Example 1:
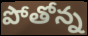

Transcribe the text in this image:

పోతోన్న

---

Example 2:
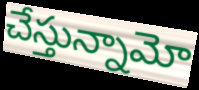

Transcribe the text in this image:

చేస్తున్నామో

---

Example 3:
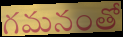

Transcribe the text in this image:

గమనంతో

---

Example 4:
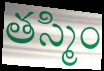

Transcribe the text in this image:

తస్మిం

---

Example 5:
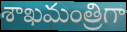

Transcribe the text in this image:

శాఖమంత్రిగా